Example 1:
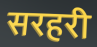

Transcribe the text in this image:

सरहरी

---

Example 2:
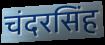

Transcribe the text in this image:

चंदरसिंह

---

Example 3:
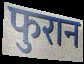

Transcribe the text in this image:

फुरान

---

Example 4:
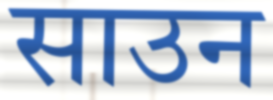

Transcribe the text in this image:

साउन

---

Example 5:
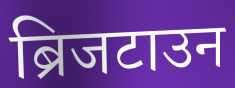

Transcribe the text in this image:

ब्रिजटाउन